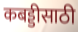
कबड्डीसाठी